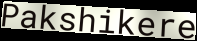
Pakshikere